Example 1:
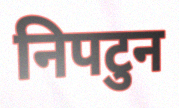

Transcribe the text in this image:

निपटुन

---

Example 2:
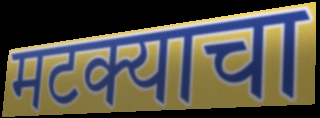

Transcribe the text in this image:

मटक्याचा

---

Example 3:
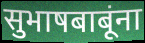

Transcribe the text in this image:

सुभाषबाबूंना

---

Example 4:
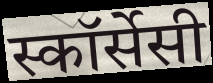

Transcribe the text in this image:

स्कॉर्सेसी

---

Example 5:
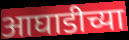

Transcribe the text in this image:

आघाडीच्या